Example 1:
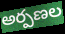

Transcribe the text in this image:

అర్పణల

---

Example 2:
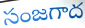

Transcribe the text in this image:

సంజగాద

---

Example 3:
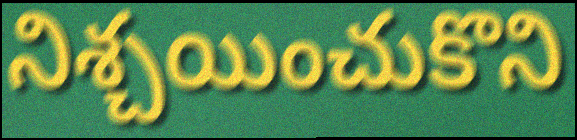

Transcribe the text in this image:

నిశ్చయించుకొని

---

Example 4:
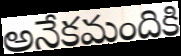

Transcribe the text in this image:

అనేకమందికి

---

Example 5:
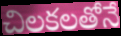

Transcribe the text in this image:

చిలకలతోనే